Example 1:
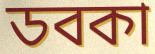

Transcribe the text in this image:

ডবকা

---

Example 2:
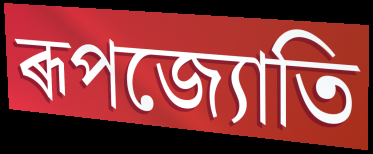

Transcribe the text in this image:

ৰূপজ্যোতি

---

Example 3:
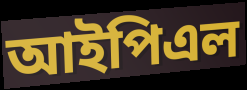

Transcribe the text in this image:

আইপিএল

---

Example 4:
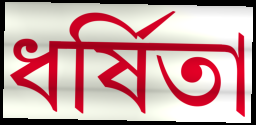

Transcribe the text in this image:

ধৰ্ষিতা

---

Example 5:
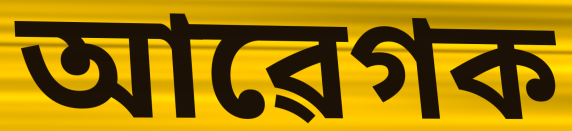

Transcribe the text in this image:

আৱেগক